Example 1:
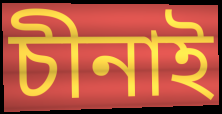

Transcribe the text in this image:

চীনাই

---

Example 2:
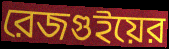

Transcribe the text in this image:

রেজগুইয়ের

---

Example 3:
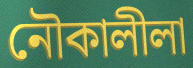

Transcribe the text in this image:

নৌকালীলা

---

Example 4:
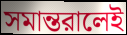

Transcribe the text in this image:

সমান্তরালেই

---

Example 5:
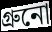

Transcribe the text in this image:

গ্রুনো